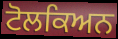
ਟੋਲਕਿਅਨ